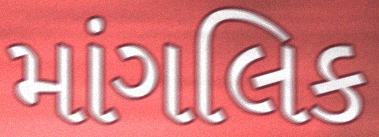
માંગલિક